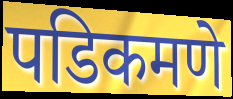
पडिकमणे